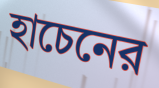
হাচেনের